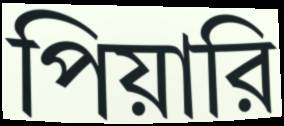
পিয়ারি